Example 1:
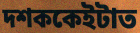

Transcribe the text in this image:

দশককেইটাত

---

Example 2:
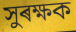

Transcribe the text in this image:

সুৰক্ষক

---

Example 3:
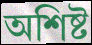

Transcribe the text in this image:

অশিষ্ট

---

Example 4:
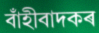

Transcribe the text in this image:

বাঁহীবাদকৰ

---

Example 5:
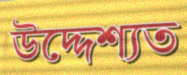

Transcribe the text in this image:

উদ্দেশ্যত